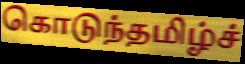
கொடுந்தமிழ்ச்